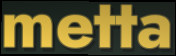
metta